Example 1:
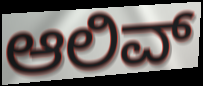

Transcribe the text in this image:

ಆಲಿವ್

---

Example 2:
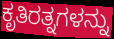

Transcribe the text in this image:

ಕೃತಿರತ್ನಗಳನ್ನು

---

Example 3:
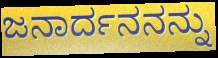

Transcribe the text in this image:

ಜನಾರ್ದನನನ್ನು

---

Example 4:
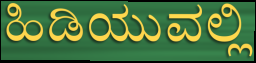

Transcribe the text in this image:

ಹಿಡಿಯುವಲ್ಲಿ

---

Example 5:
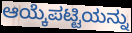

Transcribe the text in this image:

ಆಯ್ಕೆಪಟ್ಟಿಯನ್ನು